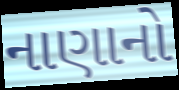
નાણાનો